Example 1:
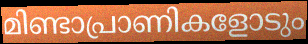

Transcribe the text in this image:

മിണ്ടാപ്രാണികളോടും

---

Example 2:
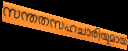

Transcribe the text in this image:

സന്തതസഹചാരിയുമായ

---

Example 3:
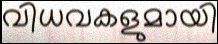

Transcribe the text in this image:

വിധവകളുമായി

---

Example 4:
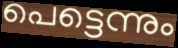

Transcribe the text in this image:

പെട്ടെന്നും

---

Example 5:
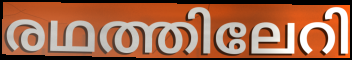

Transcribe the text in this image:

രഥത്തിലേറി